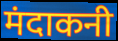
मंदाकनी